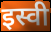
इस्वी